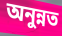
অনুন্নত